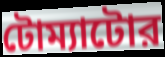
টোম্যাটোর